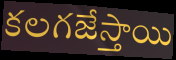
కలగజేస్తాయి